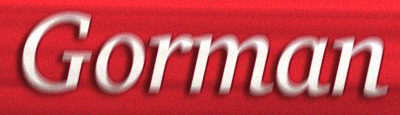
Gorman